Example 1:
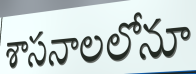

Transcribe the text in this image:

శాసనాలలోనూ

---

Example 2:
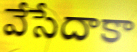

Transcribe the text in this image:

వేసేదాకా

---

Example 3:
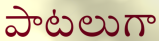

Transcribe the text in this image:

పాటలుగా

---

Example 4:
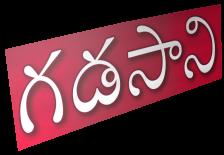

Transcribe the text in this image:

గడసాని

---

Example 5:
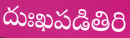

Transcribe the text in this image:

దుఃఖపడితిరి